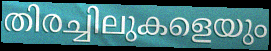
തിരച്ചിലുകളെയും